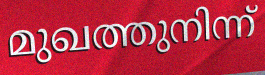
മുഖത്തുനിന്ന്